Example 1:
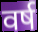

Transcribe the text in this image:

वर्ष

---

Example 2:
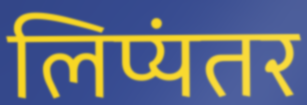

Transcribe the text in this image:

लिप्यंतर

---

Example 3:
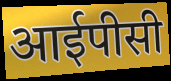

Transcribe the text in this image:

आईपीसी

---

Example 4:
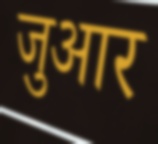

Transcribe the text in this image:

जुआर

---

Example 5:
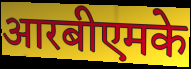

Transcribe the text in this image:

आरबीएमके